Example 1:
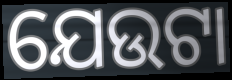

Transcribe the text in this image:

ଯେଉଟା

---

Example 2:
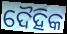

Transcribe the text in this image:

ଦୈହିକ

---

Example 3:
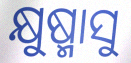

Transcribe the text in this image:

କ୍ଷୁଷ୍ମାସୁ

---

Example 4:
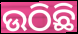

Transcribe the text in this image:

ଉଠିଛି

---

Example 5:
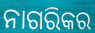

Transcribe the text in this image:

ନାଗରିକର